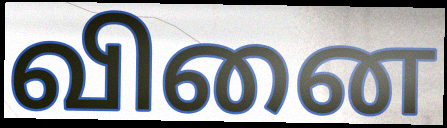
வினை